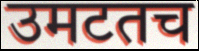
उमटतच